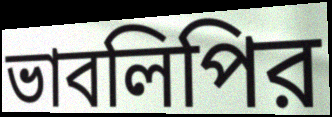
ভাবলিপির